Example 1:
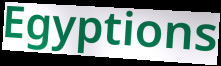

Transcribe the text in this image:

Egyptions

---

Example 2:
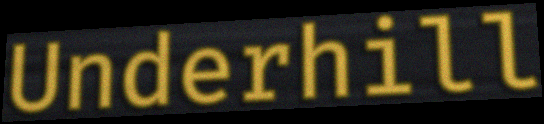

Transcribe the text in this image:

Underhill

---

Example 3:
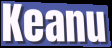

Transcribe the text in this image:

Keanu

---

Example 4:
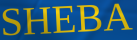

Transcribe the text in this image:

SHEBA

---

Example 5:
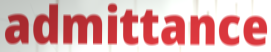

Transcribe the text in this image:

admittance